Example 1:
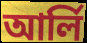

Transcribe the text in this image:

আৰ্লি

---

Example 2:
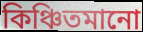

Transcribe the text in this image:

কিঞ্চিতমানো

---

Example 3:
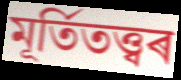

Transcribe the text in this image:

মূৰ্তিতত্ত্বৰ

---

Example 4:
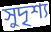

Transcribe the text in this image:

সুদৃশ্য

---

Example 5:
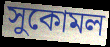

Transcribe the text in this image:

সুকোমল